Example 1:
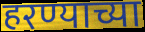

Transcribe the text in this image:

हरण्याच्या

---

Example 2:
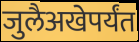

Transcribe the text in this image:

जुलैअखेपर्यंत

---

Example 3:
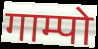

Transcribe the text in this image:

गाम्पो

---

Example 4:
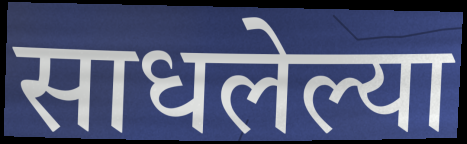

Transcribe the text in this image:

साधलेल्या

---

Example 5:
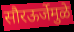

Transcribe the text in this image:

सौरऊर्जेमुळे